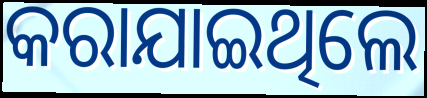
କରାଯାଇଥିଲେ